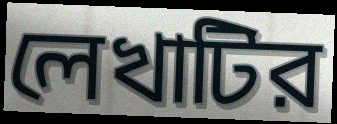
লেখাটির